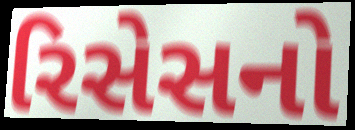
રિસેસનો